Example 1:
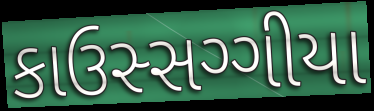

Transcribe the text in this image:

કાઉસ્સગ્ગીયા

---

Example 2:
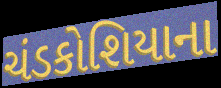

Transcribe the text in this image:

ચંડકોશિયાના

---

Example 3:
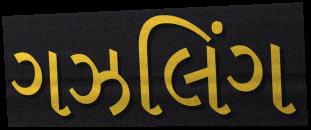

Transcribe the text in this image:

ગઝલિંગ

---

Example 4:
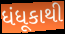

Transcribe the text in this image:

ધંધૂકાથી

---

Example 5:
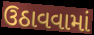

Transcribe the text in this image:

ઉઠાવવામાં